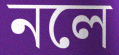
নলে